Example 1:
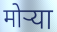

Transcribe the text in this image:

मोऱ्या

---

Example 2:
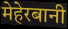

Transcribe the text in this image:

मेहेरबानी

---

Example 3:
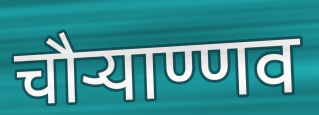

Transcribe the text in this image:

चौऱ्याण्णव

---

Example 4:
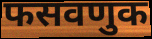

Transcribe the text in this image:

फसवणुक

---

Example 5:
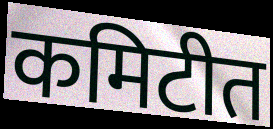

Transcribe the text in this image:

कमिटीत